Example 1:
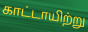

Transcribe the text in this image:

காட்டாயிற்று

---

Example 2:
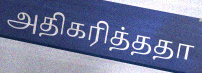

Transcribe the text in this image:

அதிகரித்ததா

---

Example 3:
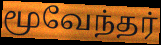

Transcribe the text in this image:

மூவேந்தர்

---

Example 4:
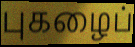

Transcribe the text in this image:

புகழைப்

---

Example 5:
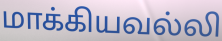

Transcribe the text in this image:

மாக்கியவல்லி